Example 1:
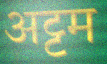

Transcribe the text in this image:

अट्टम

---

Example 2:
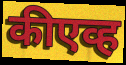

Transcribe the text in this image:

कीएव्ह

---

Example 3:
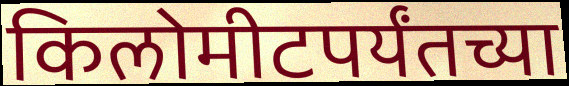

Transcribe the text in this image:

किलोमीटपर्यंतच्या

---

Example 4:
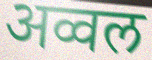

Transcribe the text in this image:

अव्वल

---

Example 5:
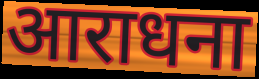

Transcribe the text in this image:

आराधना